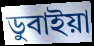
ডুবাইয়া